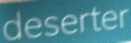
deserter